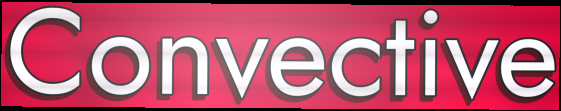
Convective